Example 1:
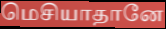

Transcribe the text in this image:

மெசியாதானே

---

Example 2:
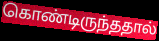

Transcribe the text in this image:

கொண்டிருந்ததால்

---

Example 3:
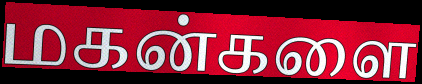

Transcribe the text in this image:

மகன்களை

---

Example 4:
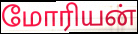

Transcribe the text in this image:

மோரியன்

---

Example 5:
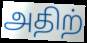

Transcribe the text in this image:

அதிற்